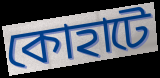
কোহাটে